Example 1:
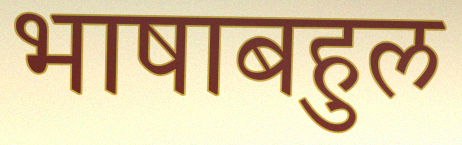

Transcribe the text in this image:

भाषाबहुल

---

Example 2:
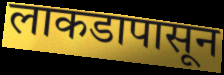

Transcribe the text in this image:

लाकडापासून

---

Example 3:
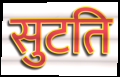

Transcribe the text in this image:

सुटति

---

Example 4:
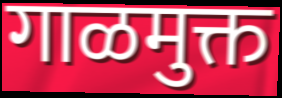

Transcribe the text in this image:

गाळमुक्त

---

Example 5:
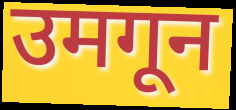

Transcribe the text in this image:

उमगून